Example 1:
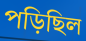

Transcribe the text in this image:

পড়িছিল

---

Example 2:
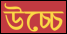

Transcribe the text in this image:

উচ্চে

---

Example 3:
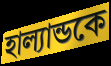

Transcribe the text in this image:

হাল্যান্ডকে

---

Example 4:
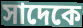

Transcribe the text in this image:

সাদেকে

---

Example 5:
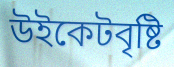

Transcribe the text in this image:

উইকেটবৃষ্টি